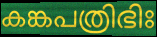
കങ്കപത്രിഭിഃ